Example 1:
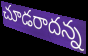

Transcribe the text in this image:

చూడరాదన్న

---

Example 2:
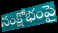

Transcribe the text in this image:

సంక్షోభంపై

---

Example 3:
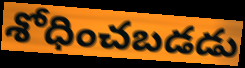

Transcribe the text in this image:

శోధించబడడు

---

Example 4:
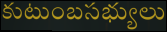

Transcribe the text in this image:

కుటుంబసభ్యులు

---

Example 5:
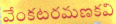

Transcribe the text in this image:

వేంకటరమణకవి